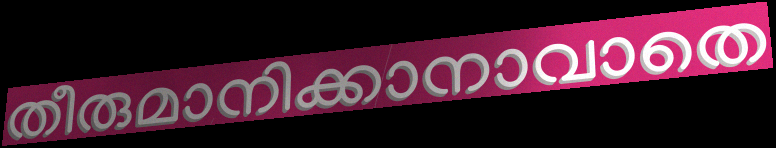
തീരുമാനിക്കാനാവാതെ